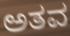
ಅತವ